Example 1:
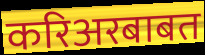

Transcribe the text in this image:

करिअरबाबत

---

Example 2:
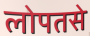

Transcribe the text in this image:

लोपतसे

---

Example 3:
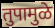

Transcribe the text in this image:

तुपामुळे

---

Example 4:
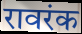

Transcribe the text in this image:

रावरंक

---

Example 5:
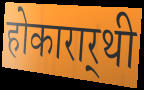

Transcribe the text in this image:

होकारार्थी